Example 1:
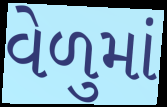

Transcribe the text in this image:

વેળુમાં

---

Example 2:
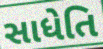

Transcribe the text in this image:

સાધેતિ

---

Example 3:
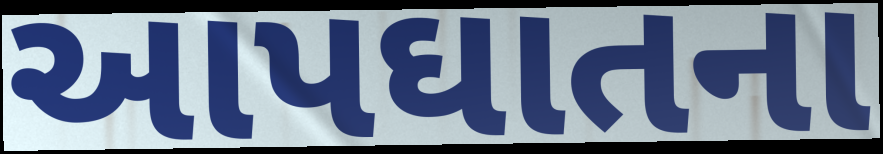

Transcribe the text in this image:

આપઘાતના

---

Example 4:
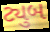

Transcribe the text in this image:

ટ્યુબ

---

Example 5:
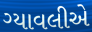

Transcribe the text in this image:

ગ્યાવલીએ